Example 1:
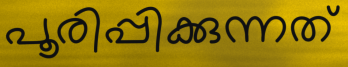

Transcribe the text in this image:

പൂരിപ്പിക്കുന്നത്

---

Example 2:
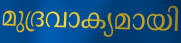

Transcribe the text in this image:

മുദ്രവാക്യമായി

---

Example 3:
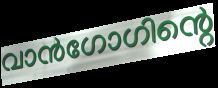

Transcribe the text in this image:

വാൻഗോഗിന്റെ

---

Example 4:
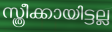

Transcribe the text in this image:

സ്ത്രീക്കായിട്ടല്ല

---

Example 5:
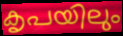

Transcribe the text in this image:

കൃപയിലും